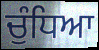
ਚੁੰਧਿਆ